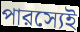
পারস্যেই